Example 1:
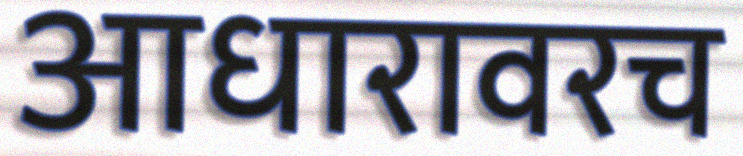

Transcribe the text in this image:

आधारावरच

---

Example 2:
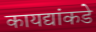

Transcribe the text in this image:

कायद्यांकडे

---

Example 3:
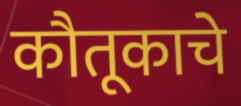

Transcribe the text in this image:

कौतूकाचे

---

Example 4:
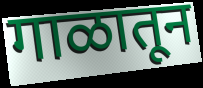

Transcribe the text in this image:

गाळातून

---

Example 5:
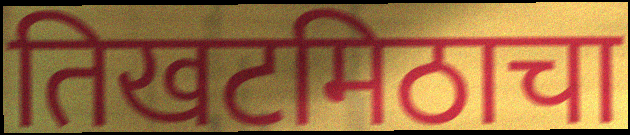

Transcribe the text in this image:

तिखटमिठाचा